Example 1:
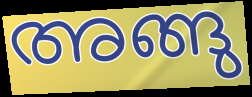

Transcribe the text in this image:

അങ്ങു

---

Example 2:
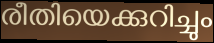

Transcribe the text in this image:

രീതിയെക്കുറിച്ചും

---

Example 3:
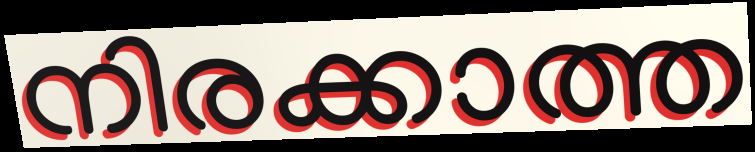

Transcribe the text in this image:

നിരക്കാത്ത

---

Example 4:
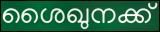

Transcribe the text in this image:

ശൈഖുനക്ക്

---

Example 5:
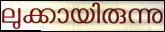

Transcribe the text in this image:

ലുക്കായിരുന്നു